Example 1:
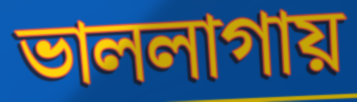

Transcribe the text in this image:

ভাললাগায়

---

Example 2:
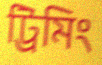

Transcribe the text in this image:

ট্রিমিং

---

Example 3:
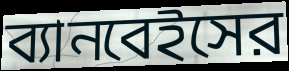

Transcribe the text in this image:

ব্যানবেইসের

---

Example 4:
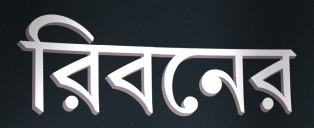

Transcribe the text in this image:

রিবনের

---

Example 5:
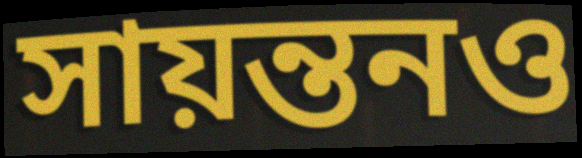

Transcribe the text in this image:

সায়ন্তনও